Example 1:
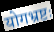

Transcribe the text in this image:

योगभ्रष्टः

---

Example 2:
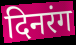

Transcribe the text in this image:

दिनरंग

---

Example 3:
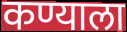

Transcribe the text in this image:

कण्याला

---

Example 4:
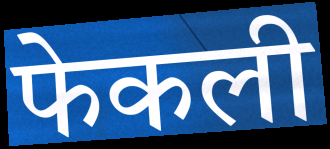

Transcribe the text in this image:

फेकली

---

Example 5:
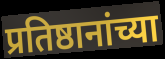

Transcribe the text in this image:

प्रतिष्ठानांच्या